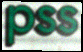
pss